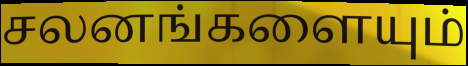
சலனங்களையும்